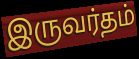
இருவர்தம்